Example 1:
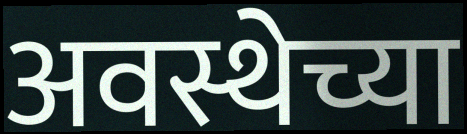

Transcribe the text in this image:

अवस्थेच्या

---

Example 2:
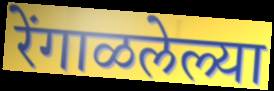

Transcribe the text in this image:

रेंगाळलेल्या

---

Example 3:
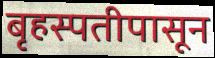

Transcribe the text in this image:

बृहस्पतीपासून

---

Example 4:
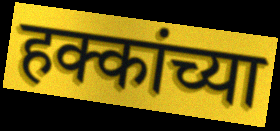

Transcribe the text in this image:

हक्कांच्या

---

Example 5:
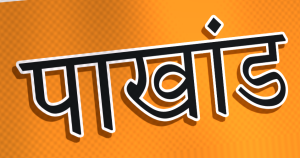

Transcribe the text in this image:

पाखांड